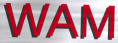
WAM